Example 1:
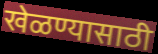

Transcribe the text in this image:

खेळण्यासाठी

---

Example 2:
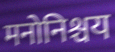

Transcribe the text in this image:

मनोनिश्चय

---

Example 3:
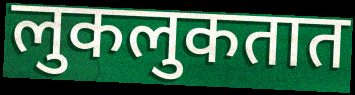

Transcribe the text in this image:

लुकलुकतात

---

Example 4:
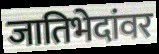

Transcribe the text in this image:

जातिभेदांवर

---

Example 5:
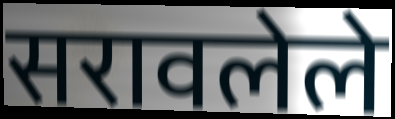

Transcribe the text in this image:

सरावलेले